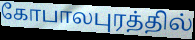
கோபாலபுரத்தில்